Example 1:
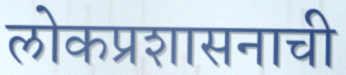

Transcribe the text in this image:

लोकप्रशासनाची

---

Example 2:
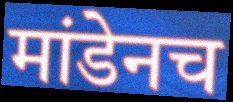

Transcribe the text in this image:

मांडेनच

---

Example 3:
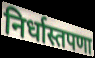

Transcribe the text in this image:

निर्धास्तपणा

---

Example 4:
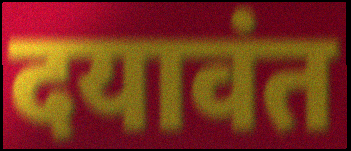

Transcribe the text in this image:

दयावंत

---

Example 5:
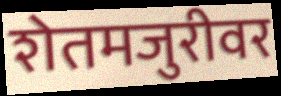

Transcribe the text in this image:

शेतमजुरीवर